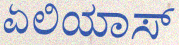
ಏಲಿಯಾಸ್